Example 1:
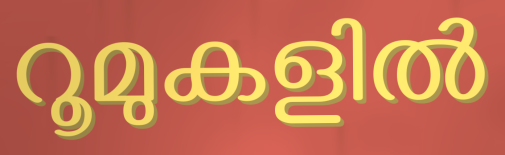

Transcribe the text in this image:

റൂമുകളിൽ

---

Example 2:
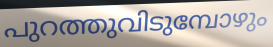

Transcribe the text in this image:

പുറത്തുവിടുമ്പോഴും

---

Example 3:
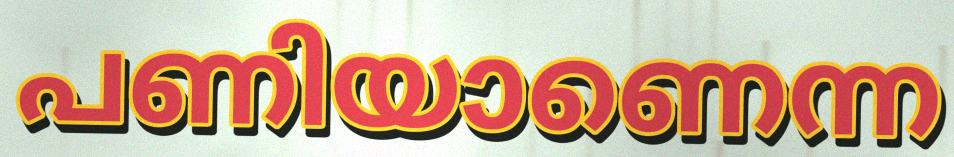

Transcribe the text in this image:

പണിയാണെന്ന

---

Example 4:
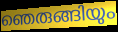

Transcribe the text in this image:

ഞെരുങ്ങിയും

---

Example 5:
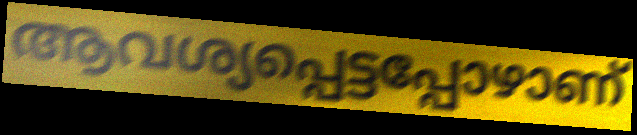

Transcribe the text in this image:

ആവശ്യപ്പെട്ടപ്പോഴാണ്